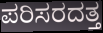
ಪರಿಸರದತ್ತ